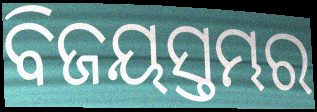
ବିଜୟସ୍ତମ୍ଭର